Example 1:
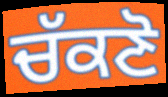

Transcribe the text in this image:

ਚੱਕਣੋ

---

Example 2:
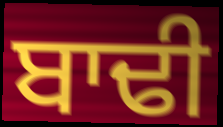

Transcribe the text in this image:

ਬਾਢੀ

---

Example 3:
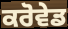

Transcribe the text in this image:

ਕਰੋਵੇਡ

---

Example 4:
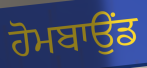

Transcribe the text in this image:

ਹੋਮਬਾਉਂਡ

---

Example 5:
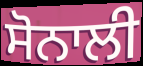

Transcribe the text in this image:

ਸੋਨਾਲੀ